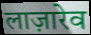
लाज़ारेव